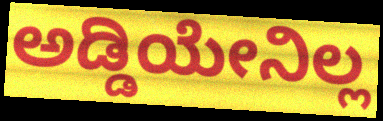
ಅಡ್ಡಿಯೇನಿಲ್ಲ